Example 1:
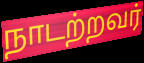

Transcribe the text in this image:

நாடற்றவர்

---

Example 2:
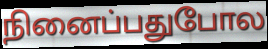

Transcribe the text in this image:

நினைப்பதுபோல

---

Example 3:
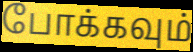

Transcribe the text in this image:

போக்கவும்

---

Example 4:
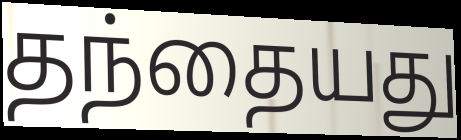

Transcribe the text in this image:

தந்தையது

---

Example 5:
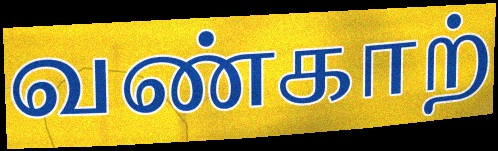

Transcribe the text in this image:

வண்காற்